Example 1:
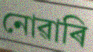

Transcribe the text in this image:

নোৱাৰি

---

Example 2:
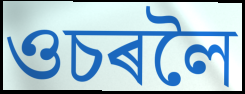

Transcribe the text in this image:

ওচৰলৈ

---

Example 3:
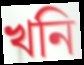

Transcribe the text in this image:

খনি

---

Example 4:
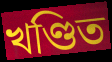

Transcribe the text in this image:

খণ্ডিত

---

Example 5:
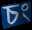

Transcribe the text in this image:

চং